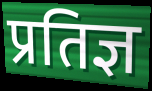
प्रतिज्ञ